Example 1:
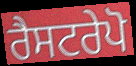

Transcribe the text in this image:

ਰੈਸਟਰੇਪੋ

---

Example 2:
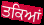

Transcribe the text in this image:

ਤਕਿਆਂ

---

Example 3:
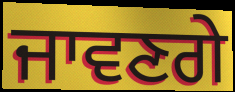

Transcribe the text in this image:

ਜਾਵਣਗੇ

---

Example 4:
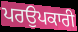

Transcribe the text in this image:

ਪਰਉਪਕਾਰੀ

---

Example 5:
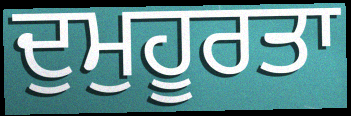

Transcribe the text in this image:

ਦੁਮੁਹੂਰਤਾ